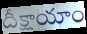
దీక్షాయాం